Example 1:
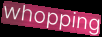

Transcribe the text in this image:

whopping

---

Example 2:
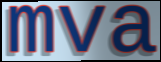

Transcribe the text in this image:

mva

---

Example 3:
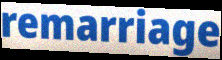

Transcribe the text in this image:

remarriage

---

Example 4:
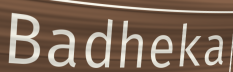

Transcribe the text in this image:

Badheka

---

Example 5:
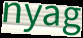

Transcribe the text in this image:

nyag